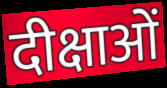
दीक्षाओं